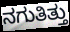
ನಗುತಿತ್ತು